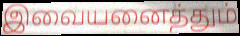
இவையனைத்தும்